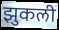
झुकली